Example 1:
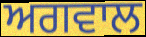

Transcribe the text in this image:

ਅਗਵਾਲ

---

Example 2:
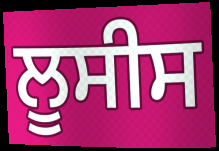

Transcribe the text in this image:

ਲੂਸੀਸ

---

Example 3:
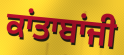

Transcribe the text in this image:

ਕਾਂਤਾਬਾਂਜੀ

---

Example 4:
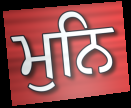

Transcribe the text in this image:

ਮੁਨਿ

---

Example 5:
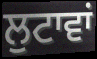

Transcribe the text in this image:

ਲੁਟਾਵਾਂ